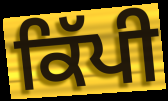
ਕਿੱਪੀ